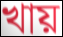
খায়